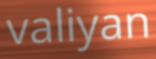
valiyan